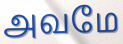
அவமே